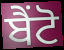
ਬੈਂਟੋ